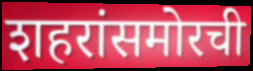
शहरांसमोरची